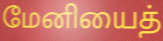
மேனியைத்